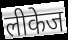
लीकेज